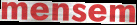
mensem